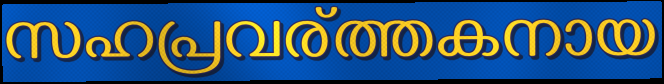
സഹപ്രവര്ത്തകനായ